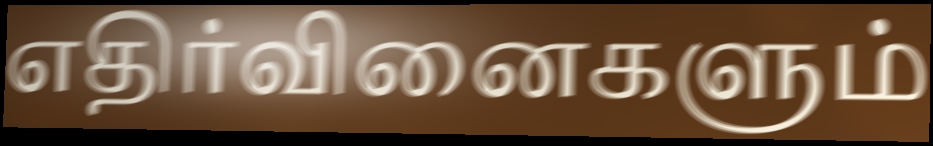
எதிர்வினைகளும்